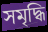
সমৃদ্ধি